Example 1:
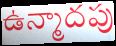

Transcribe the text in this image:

ఉన్మాదపు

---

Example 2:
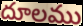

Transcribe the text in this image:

దూలము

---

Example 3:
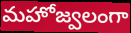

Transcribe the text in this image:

మహోజ్వలంగా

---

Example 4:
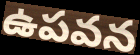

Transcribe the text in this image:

ఉపవన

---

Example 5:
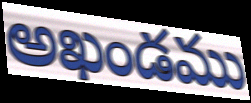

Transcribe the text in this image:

అఖండము